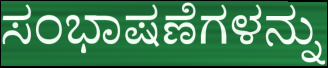
ಸಂಭಾಷಣೆಗಳನ್ನು